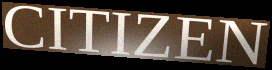
CITIZEN